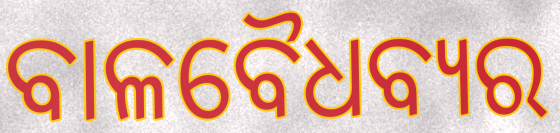
ବାଳବୈଧବ୍ୟର